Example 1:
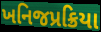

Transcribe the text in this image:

ખનિજપ્રક્રિયા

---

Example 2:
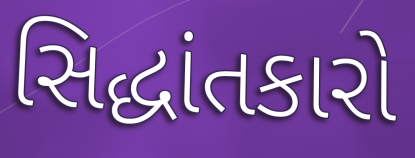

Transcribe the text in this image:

સિદ્ધાંતકારો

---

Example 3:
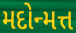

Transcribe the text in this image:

મદોન્મત્ત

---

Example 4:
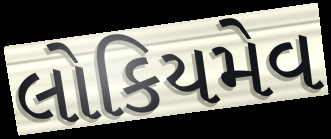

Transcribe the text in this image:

લોકિયમેવ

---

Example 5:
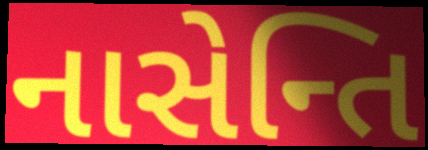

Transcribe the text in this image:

નાસેન્તિ